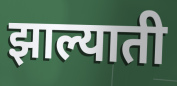
झाल्याती